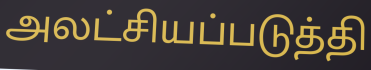
அலட்சியப்படுத்தி